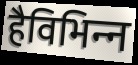
हैविभिन्न